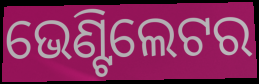
ଭେଣ୍ଟିଲେଟର